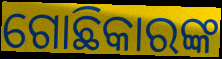
ଗୋଛିକାରଙ୍କ